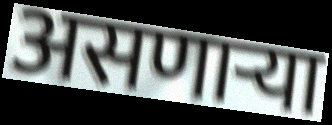
असणाऱ्या